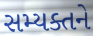
સમ્યક્તને